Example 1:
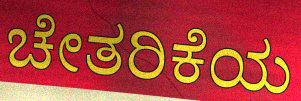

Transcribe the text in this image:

ಚೇತರಿಕೆಯ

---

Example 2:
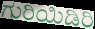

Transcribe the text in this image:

ಗುರಿಯಿಡಿರಿ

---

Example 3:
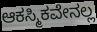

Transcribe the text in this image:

ಆಕಸ್ಮಿಕವೇನಲ್ಲ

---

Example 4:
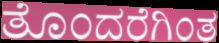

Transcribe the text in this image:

ತೊಂದರೆಗಿಂತ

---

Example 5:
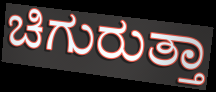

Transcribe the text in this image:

ಚಿಗುರುತ್ತಾ